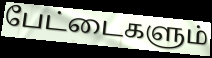
பேட்டைகளும்